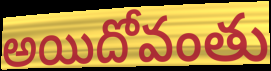
అయిదోవంతు